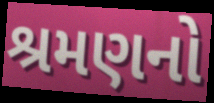
શ્રમણનો